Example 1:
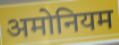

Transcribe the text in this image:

अमोनियम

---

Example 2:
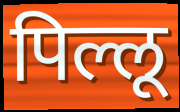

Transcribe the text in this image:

पिल्लू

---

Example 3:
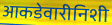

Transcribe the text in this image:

आकडेवारीनिशी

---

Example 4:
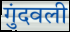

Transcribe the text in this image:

गुंदवली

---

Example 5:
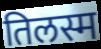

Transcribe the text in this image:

तिलस्म